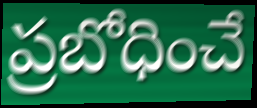
ప్రబోధించే